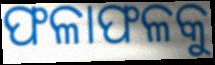
ଫଳାଫଳକୁ